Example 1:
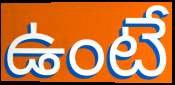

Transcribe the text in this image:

ఉంటే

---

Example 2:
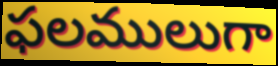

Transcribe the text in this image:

ఫలములుగా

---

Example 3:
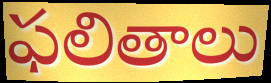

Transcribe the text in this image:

ఫలితాలు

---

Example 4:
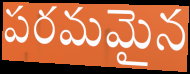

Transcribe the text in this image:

పరమమైన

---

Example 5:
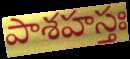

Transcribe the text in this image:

పాశహస్తః